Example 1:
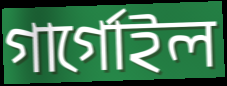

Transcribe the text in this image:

গাৰ্গোইল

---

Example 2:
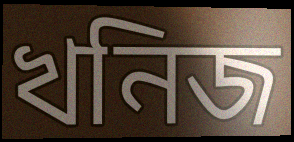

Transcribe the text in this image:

খনিজ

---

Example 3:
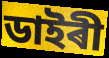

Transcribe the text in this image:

ডাইৰী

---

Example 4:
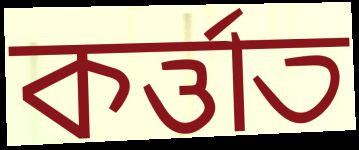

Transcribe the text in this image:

কৰ্ত্তাত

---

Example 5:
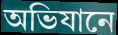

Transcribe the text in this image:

অভিযানে